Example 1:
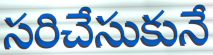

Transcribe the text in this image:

సరిచేసుకునే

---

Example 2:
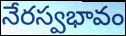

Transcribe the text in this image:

నేరస్వభావం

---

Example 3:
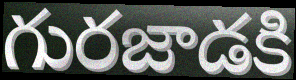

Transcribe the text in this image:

గురజాడకి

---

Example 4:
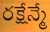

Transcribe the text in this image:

రక్షేన్మే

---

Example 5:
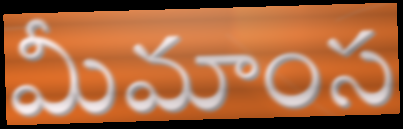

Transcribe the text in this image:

మీమాంస